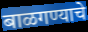
बाळगण्याचे